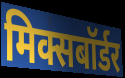
मिक्सबॉर्डर